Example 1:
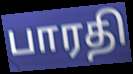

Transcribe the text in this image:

பாரதி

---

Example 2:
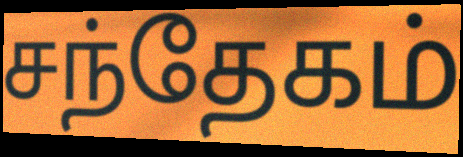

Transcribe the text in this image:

சந்தேகம்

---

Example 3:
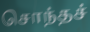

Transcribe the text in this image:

சொந்தச்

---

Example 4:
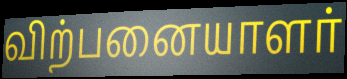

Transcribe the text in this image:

விற்பனையாளர்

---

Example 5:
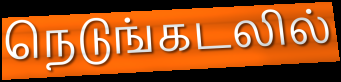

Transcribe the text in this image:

நெடுங்கடலில்